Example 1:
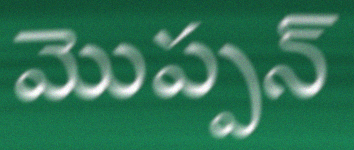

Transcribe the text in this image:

మొప్పన్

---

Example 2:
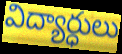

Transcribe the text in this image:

విద్యార్ధులు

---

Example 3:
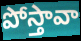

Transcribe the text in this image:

పోస్తావా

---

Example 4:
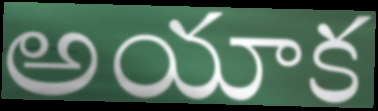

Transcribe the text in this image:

అయాక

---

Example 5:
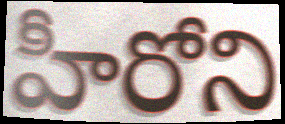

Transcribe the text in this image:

హీరోని